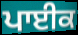
ਪਾਈਕ